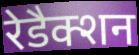
रेडैक्शन